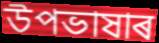
উপভাষাৰ